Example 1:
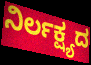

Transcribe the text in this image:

ನಿರ್ಲಕ್ಷ್ಯದ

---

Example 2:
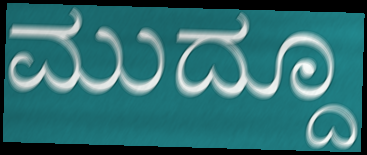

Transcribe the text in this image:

ಮುದ್ದೂ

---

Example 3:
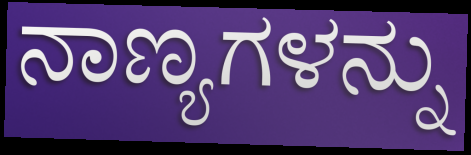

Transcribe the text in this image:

ನಾಣ್ಯಗಳನ್ನು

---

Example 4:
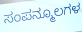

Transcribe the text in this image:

ಸಂಪನ್ಮೂಲಗಳ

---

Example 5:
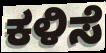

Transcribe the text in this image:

ಕಳಿಸೆ